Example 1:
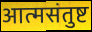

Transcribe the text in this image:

आत्मसंतुष्ट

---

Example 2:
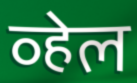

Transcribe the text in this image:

व्हेल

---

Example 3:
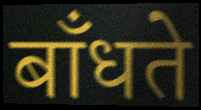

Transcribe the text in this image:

बाँधते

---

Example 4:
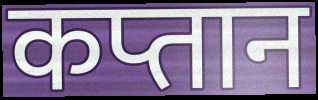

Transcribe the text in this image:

कप्‍तान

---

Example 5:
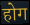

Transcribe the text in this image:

होग